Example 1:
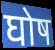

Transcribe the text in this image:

घोष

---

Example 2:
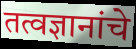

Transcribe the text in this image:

तत्वज्ञानांचे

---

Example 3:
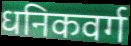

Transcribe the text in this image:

धनिकवर्ग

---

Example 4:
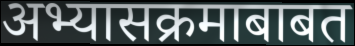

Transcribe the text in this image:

अभ्यासक्रमाबाबत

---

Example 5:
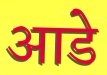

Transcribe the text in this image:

आडे